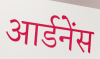
आर्डनेंस